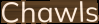
Chawls